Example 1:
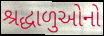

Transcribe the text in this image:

શ્રદ્ધાળુઓનો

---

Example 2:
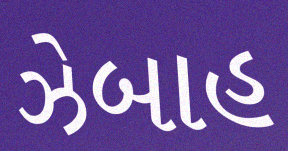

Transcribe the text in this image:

ઝેબાહ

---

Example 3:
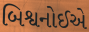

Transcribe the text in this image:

બિશ્વનોઈએ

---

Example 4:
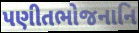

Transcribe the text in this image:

પણીતભોજનાનિ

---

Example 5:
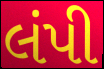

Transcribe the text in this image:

લંપી